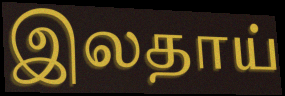
இலதாய்